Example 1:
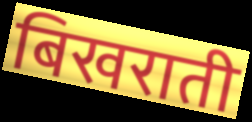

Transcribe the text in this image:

बिखराती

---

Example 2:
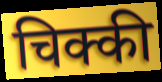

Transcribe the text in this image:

चिक्की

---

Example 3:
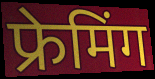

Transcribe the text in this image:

फ्रेमिंग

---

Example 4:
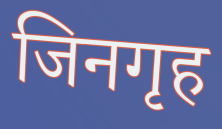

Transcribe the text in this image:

जिनगृह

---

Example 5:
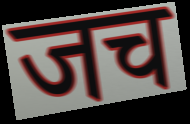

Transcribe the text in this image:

जच